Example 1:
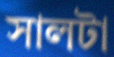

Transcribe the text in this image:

সালটা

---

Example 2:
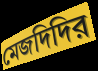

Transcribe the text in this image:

মেজদিদির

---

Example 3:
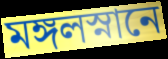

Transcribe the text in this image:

মঙ্গলস্নানে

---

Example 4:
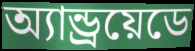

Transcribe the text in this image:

অ্যান্ড্রয়েডে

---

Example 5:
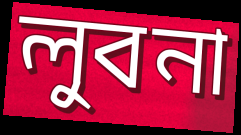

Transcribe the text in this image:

লুবনা